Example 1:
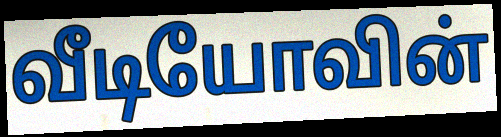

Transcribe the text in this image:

வீடியோவின்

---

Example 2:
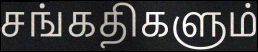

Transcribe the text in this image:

சங்கதிகளும்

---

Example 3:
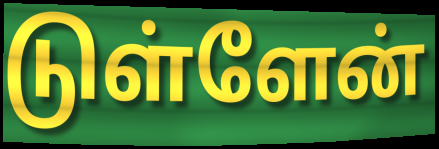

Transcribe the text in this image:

டுள்ளேன்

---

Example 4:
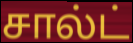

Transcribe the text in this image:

சால்ட்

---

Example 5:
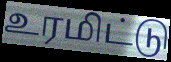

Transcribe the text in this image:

உரமிட்டு